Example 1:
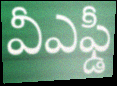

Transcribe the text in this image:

వీఎఫ్డీ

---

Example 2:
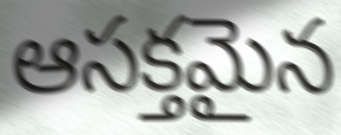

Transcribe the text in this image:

ఆసక్తమైన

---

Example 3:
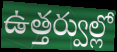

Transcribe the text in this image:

ఉత్తర్వుల్లో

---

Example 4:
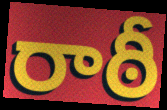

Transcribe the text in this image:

రాఠీ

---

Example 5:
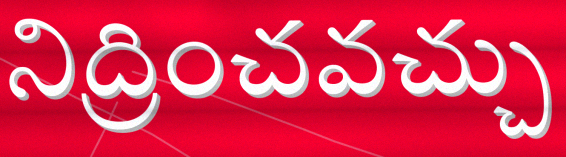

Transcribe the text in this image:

నిద్రించవచ్చు